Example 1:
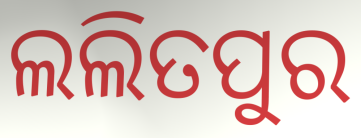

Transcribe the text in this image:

ଲଲିତପୁର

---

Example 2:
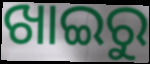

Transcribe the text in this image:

ଖାଇରୁ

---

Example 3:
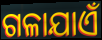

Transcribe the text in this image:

ଗଳାଯାଏଁ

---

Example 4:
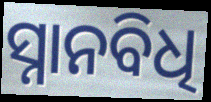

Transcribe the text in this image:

ସ୍ନାନବିଧି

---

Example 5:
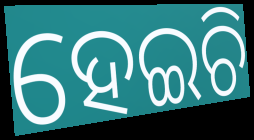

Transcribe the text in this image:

ହେଇଚି